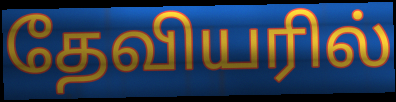
தேவியரில்